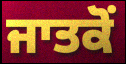
ਜਾਤਕੋਂ